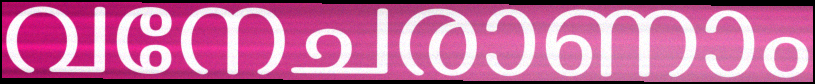
വനേചരാണാം